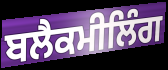
ਬਲੈਕਮੀਲਿੰਗ